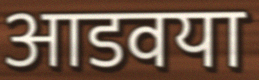
आडवया